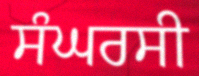
ਸੰਘਰਸੀ